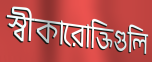
স্বীকারোক্তিগুলি